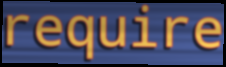
require